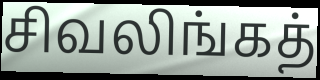
சிவலிங்கத்